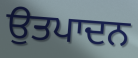
ਉਤਪਾਦਨ